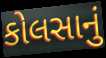
કોલસાનું